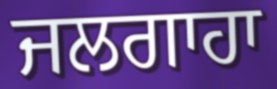
ਜਲਗਾਹਾ